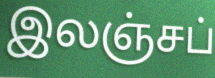
இலஞ்சப்